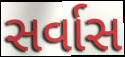
સર્વાસ